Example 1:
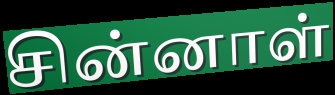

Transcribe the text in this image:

சின்னாள்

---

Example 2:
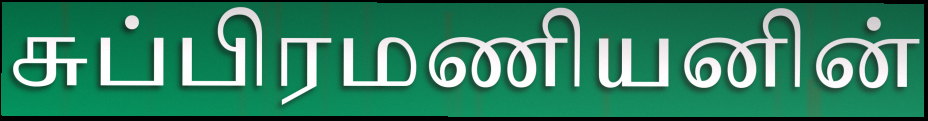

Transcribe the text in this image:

சுப்பிரமணியனின்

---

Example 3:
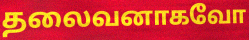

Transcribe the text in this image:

தலைவனாகவோ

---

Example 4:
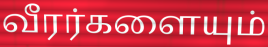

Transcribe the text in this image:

வீரர்களையும்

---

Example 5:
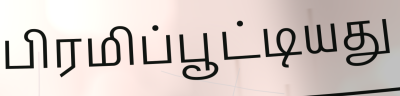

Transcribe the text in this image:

பிரமிப்பூட்டியது